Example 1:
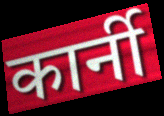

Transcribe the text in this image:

कार्नी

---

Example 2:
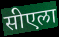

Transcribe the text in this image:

सीएला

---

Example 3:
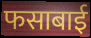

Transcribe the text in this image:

फसाबाई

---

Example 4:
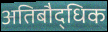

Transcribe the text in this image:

अतिबौद्धिक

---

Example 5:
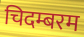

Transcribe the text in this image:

चिदम्बरम